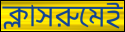
ক্লাসরুমেই